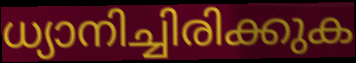
ധ്യാനിച്ചിരിക്കുക